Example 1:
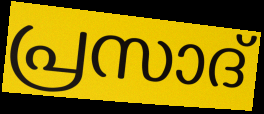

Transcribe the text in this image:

പ്രസാദ്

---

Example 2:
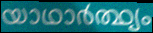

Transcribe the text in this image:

യാഥാർത്ഥ്യം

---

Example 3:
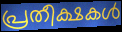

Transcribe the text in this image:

പ്രതീക്ഷകൾ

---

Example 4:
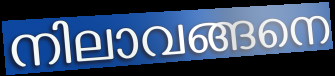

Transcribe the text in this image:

നിലാവങ്ങനെ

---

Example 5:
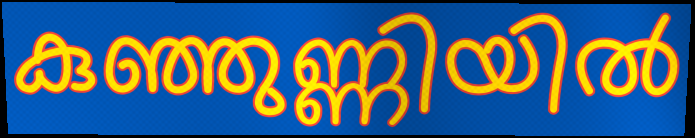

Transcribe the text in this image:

കുഞ്ഞുണ്ണിയിൽ